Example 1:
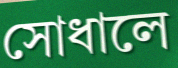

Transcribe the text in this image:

সোধালে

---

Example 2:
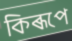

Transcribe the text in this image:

কিৰূপে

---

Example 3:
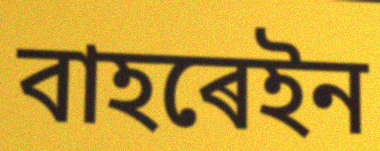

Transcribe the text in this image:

বাহৰেইন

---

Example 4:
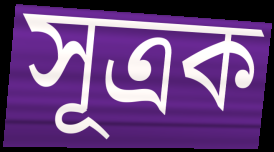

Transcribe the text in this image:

সূত্ৰক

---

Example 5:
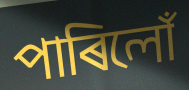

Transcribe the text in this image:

পাৰিলোঁ